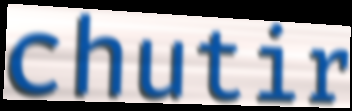
chutir